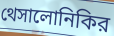
থেসালোনিকির